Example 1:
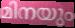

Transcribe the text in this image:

മിനയും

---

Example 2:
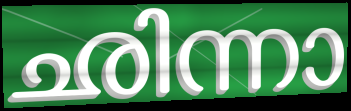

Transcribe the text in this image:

ഛിന്നാ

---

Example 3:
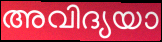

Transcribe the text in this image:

അവിദ്യയാ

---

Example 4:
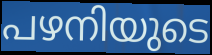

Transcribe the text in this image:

പഴനിയുടെ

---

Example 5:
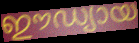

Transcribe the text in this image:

ഈഡ്യായ